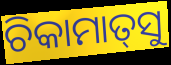
ଚିକାମାତ୍‌ସୁ